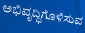
ಅಭಿವೃದ್ಧಿಗೊಳಿಸುವ